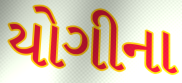
યોગીના